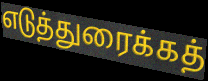
எடுத்துரைக்கத்